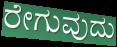
ರೇಗುವುದು